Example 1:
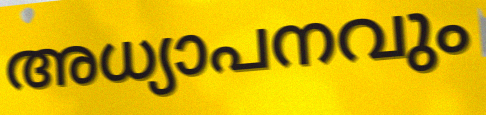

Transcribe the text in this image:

അധ്യാപനവും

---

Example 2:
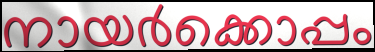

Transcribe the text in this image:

നായർക്കൊപ്പം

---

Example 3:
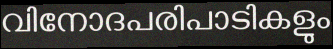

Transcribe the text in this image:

വിനോദപരിപാടികളും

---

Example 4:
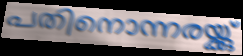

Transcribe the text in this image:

പതിനൊന്നരയ്ക്കു്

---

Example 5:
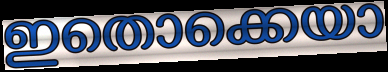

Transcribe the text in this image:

ഇതൊക്കെയാ